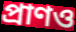
প্রাণও